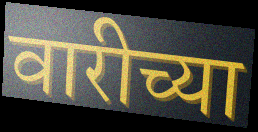
वारीच्या